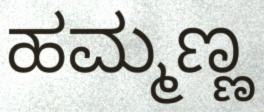
ಹಮ್ಮಣ್ಣ